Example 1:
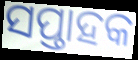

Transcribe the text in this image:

ସପ୍ତାହକ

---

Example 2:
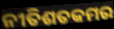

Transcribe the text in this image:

ନୀତିଶତକମର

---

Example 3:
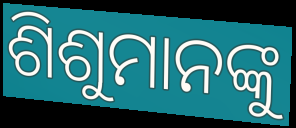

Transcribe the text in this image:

ଶିଶୁମାନଙ୍କୁ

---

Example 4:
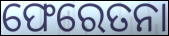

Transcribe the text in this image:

ଫେରେତନା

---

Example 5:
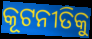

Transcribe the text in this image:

କୂଟନୀତିକୁ